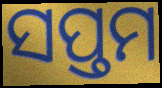
ସପ୍ତମ